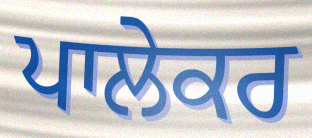
ਪਾਲੇਕਰ